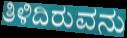
ತಿಳಿದಿರುವನು